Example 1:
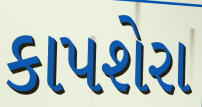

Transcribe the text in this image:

કાપશેરા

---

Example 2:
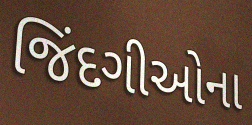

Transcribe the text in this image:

જિંદગીઓના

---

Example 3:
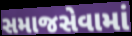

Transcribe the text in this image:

સમાજસેવામાં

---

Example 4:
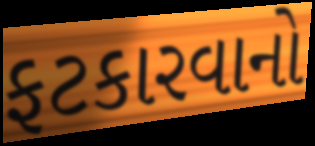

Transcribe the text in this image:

ફટકારવાનો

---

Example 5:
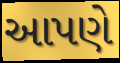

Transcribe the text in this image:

આપણે